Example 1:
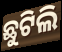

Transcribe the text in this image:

ଛୁଟିଲି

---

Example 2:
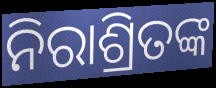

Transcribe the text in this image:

ନିରାଶ୍ରିତଙ୍କ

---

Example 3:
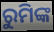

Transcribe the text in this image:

ରୁମିଙ୍କ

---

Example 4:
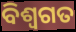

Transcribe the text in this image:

ବିଶ୍ଵଗତ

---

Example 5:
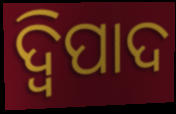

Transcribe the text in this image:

ଦ୍ୱିପାଦ